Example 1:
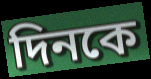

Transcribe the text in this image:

দিনকে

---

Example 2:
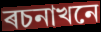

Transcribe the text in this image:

ৰচনাখনে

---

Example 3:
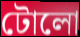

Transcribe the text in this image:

টোলো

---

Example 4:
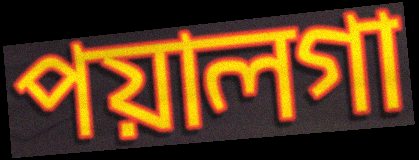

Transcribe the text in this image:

পয়ালগা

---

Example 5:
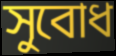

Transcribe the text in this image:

সুবোধ